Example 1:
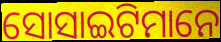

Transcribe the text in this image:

ସୋସାଇଟିମାନେ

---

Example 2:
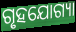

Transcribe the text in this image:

ଗୃହଯୋଗ୍ୟା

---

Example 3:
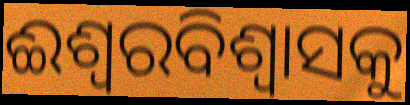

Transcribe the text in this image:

ଈଶ୍ୱରବିଶ୍ଵାସକୁ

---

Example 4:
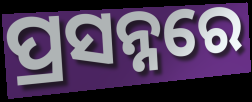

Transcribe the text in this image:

ପ୍ରସନ୍ନରେ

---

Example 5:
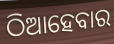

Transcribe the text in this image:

ଠିଆହେବାର